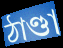
ঠাণ্ডা